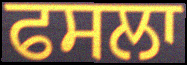
ਫਸਲਾ